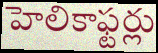
హెలికాఫ్టర్లు